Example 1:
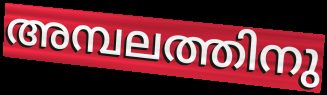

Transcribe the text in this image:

അമ്പലത്തിനു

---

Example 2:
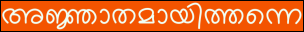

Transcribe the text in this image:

അജ്ഞാതമായിത്തന്നെ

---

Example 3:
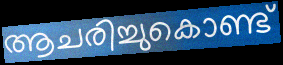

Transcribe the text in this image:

ആചരിച്ചുകൊണ്ട്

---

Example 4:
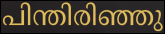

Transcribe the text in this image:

പിന്തിരിഞ്ഞു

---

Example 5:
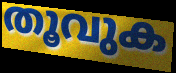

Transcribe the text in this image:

തൂവുക